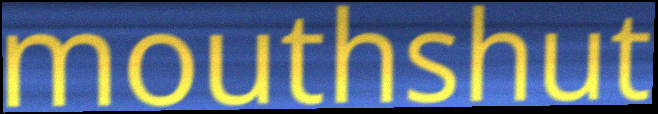
mouthshut